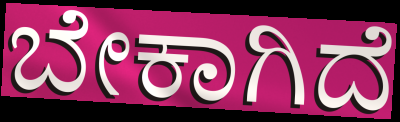
ಬೇಕಾಗಿದೆ